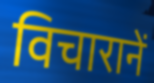
विचारानें